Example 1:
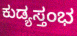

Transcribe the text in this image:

ಕುಡ್ಯಸ್ತಂಭ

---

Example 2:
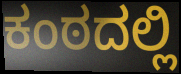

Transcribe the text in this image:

ಕಂಠದಲ್ಲಿ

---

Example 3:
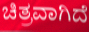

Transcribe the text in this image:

ಚಿತ್ರವಾಗಿದೆ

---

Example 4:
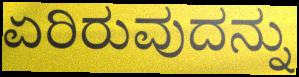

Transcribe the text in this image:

ಏರಿರುವುದನ್ನು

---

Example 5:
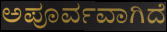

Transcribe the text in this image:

ಅಪೂರ್ವವಾಗಿದೆ